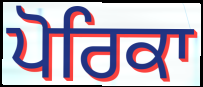
ਪੋਰਿਕਾ